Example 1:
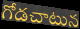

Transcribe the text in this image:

గోడచాటున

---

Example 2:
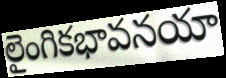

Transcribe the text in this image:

లైంగికభావనయా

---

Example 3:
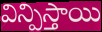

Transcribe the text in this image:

విన్పిస్తాయి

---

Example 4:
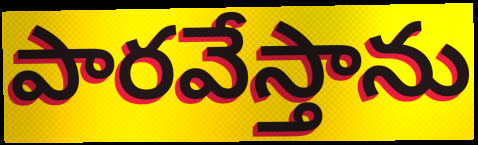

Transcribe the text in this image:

పారవేస్తాను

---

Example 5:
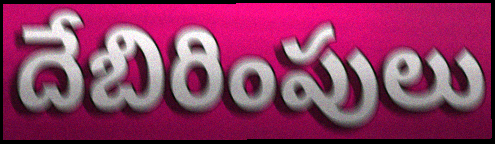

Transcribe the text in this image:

దేబిరింపులు